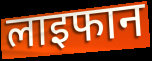
लाइफान